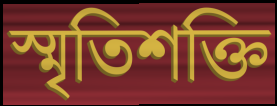
স্মৃতিশক্তি